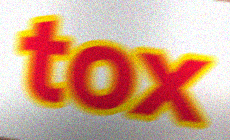
tox